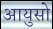
आयुसो